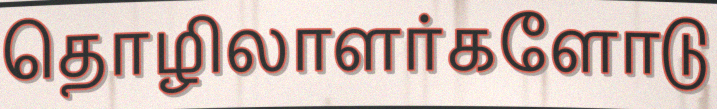
தொழிலாளர்களோடு